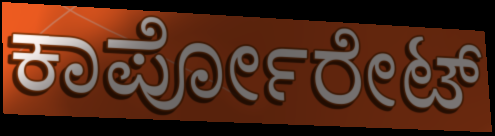
ಕಾರ್ಪೋರೇಟ್